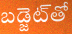
బడ్జెట్‌తో